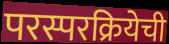
परस्परक्रियेची